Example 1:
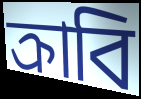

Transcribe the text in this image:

ক্রাবি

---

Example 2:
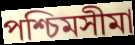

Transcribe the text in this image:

পশ্চিমসীমা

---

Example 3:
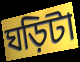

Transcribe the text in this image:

ঘড়িটা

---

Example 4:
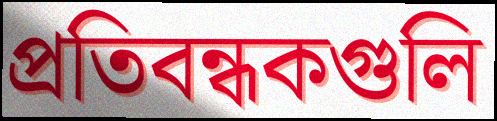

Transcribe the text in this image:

প্রতিবন্ধকগুলি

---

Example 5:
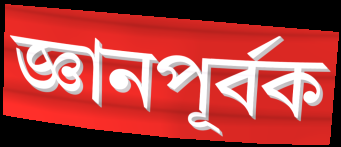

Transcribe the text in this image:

জ্ঞানপূর্বক